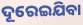
ଦୂରେଇଯିବା